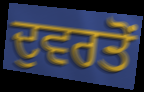
ਦੁਵਰਤੋਂ